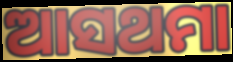
ଆସଥମା